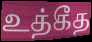
உத்கீத